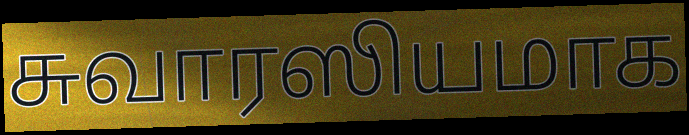
சுவாரஸியமாக